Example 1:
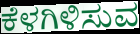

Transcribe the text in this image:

ಕೆಳಗಿಳಿಸುವ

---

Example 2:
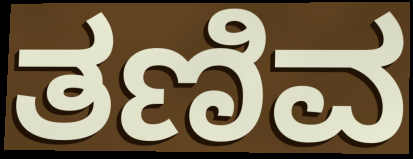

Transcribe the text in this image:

ತಣಿವ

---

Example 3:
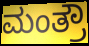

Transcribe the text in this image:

ಮಂತ್ರೌ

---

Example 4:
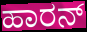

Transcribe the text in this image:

ಹಾರನ್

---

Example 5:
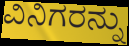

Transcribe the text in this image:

ವಿನಿಗರನ್ನು